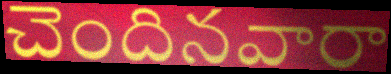
చెందినవారా